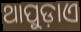
ଥାପୁଡ଼ାଏ